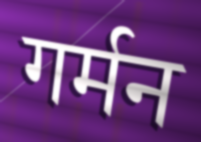
गर्मन